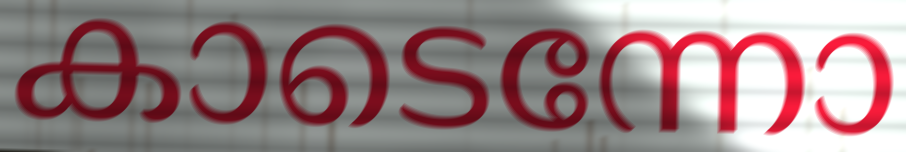
കാടെന്നോ